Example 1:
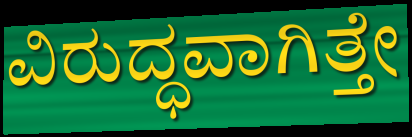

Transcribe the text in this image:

ವಿರುದ್ಧವಾಗಿತ್ತೇ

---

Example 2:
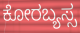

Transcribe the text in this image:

ಕೋರಬ್ಯಸ್ಸ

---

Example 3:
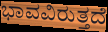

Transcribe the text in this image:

ಭಾವವಿರುತ್ತದೆ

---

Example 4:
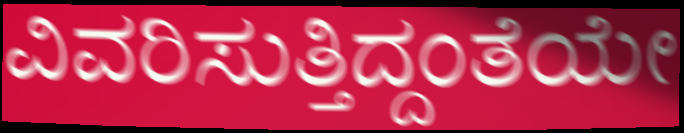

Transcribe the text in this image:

ವಿವರಿಸುತ್ತಿದ್ದಂತೆಯೇ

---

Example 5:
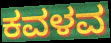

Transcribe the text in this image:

ಕವಳವ